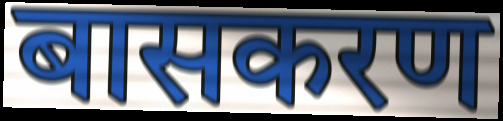
बासकरण